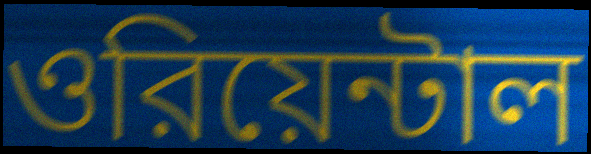
ওরিয়েন্টাল